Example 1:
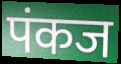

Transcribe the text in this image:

पंकज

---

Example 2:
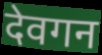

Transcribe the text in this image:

देवगन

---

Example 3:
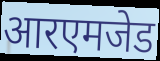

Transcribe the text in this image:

आरएमजेड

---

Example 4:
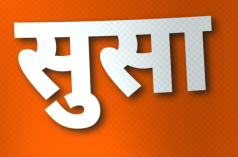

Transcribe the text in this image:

सुसा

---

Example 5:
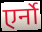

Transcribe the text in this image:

एर्नो